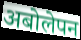
अबोलेपन